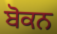
ਬੋਕਨ